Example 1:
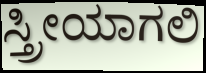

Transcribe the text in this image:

ಸ್ತ್ರೀಯಾಗಲಿ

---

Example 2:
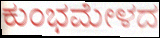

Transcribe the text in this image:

ಕುಂಭಮೇಳದ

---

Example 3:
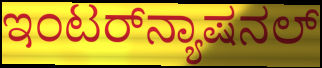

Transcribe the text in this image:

ಇಂಟರ್‌ನ್ಯಾಷನಲ್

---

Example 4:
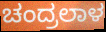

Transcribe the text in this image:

ಚಂದ್ರಲಾಳ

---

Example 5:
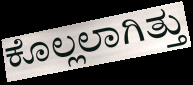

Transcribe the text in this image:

ಕೊಲ್ಲಲಾಗಿತ್ತು